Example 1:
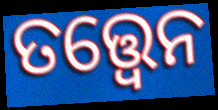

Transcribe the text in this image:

ତତ୍ତ୍ଵେନ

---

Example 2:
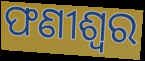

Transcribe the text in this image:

ଫଣୀଶ୍ୱର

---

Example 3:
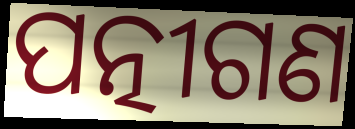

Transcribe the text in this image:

ପତ୍ନୀଗଣ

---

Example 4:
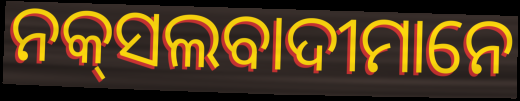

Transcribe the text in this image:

ନକ୍‌ସଲବାଦୀମାନେ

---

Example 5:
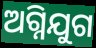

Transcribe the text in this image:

ଅଗ୍ନିଯୁଗ